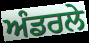
ਅੰਡਰਲੇ